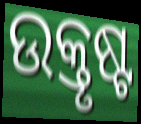
ଉକ୍ତୃଷ୍ଟ